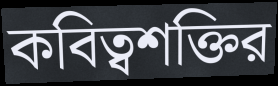
কবিত্বশক্তির